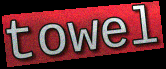
towel